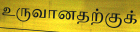
உருவானதற்குக்